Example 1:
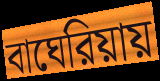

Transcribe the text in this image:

বাঘেরিয়ায়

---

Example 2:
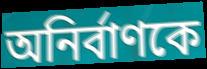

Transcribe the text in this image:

অনির্বাণকে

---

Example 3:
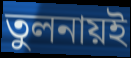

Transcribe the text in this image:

তুলনায়ই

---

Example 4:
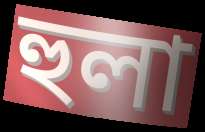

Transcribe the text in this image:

হুলা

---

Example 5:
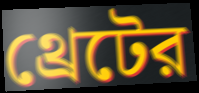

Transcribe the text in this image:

থ্রেটের